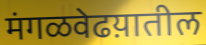
मंगळवेढय़ातील